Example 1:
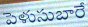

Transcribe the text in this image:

పెళుసుబారే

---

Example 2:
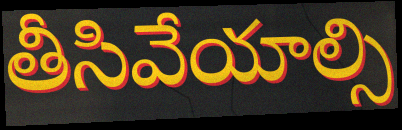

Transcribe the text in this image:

తీసివేయాల్సి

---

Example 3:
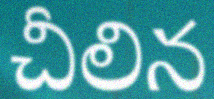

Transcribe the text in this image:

చీలిన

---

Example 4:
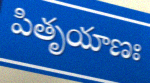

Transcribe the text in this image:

పితృయాణః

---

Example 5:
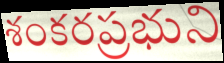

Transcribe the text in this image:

శంకరప్రభుని